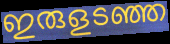
ഇരുളടഞ്ഞ